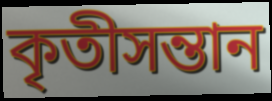
কৃতীসন্তান